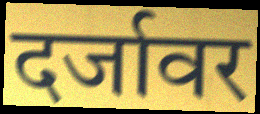
दर्जावर